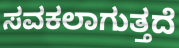
ಸವಕಲಾಗುತ್ತದೆ